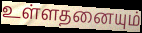
உள்ளதனையும்